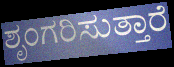
ಶೃಂಗರಿಸುತ್ತಾರೆ